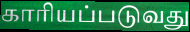
காரியப்படுவது